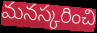
మనస్కరించి